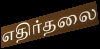
எதிர்தலை